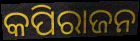
କପିରାଜନ